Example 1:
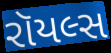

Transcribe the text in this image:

રૉયલ્સ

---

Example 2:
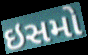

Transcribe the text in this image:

ઇસમો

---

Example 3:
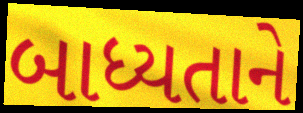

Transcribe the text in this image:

બાધ્યતાને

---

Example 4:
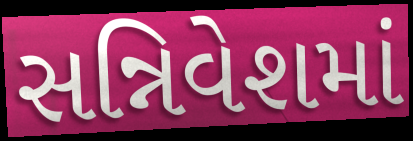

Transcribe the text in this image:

સન્નિવેશમાં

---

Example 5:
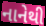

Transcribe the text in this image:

નાનેથી